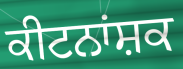
ਕੀਟਨਾਂਸ਼ਕ